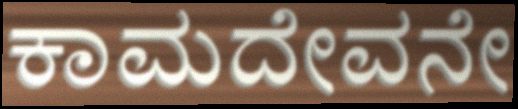
ಕಾಮದೇವನೇ